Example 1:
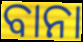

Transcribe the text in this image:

ବାନା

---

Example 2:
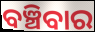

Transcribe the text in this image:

ବଞ୍ଚିବାର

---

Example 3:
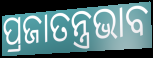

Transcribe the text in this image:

ପ୍ରଜାତନ୍ତ୍ରଭାବ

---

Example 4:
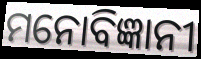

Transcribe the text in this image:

ମନୋବିଜ୍ଞାନୀ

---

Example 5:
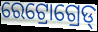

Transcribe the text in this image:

ରେଟ୍ରୋଗ୍ରେଡ୍